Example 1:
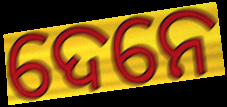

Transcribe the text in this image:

ଦେନେ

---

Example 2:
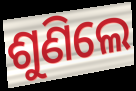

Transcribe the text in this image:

ଶୁଣିଲେ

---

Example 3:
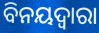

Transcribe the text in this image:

ବିନୟଦ୍ୱାରା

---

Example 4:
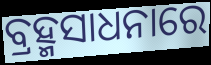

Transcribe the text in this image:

ବ୍ରହ୍ମସାଧନାରେ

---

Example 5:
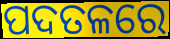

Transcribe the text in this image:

ପଦତଳରେ